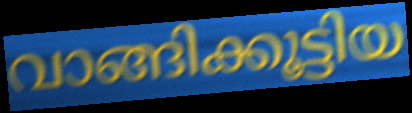
വാങ്ങിക്കൂട്ടിയ